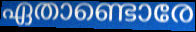
ഏതാണ്ടൊരേ